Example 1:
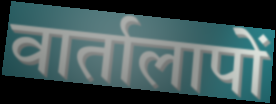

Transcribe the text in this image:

वार्तालापों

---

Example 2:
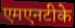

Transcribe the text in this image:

एमएनटीके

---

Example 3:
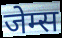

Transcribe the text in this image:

जेम्स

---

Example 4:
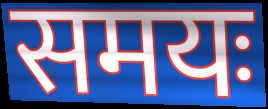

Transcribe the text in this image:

समयः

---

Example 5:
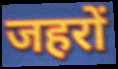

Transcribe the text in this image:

जहरों